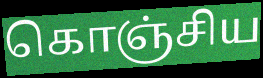
கொஞ்சிய